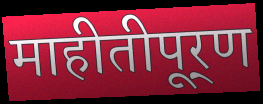
माहीतीपूर्ण